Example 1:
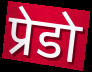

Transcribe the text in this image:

प्रेडो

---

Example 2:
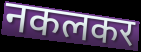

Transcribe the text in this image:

नकलकर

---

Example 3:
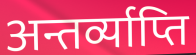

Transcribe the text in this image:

अन्तर्व्याप्ति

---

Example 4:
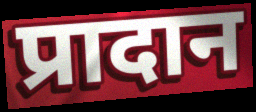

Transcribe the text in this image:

प्रादान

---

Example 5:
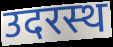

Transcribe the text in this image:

उदरस्थ